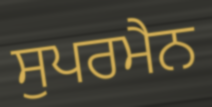
ਸੁਪਰਮੈਨ